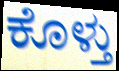
ಕೊಳ್ತು